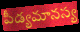
పీడ్యమానస్య